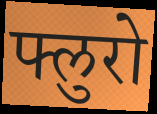
फ्लुरो